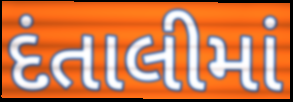
દંતાલીમાં